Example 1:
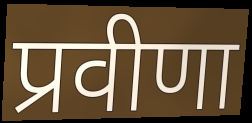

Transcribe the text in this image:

प्रवीणा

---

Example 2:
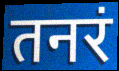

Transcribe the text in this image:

तनरं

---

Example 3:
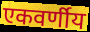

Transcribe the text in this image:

एकवर्णीय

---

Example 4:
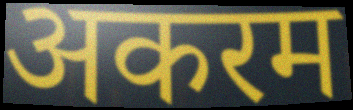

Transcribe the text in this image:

अकरम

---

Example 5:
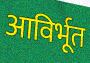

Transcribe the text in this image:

आविर्भूत